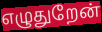
எழுதுறேன்